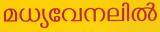
മധ്യവേനലിൽ